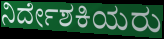
ನಿರ್ದೇಶಕಿಯರು